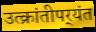
उत्क्रांतीपर्यंत